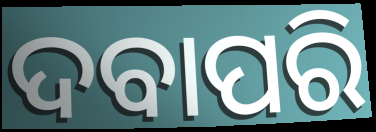
ଦବାପରି